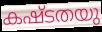
കഷ്ടതയു